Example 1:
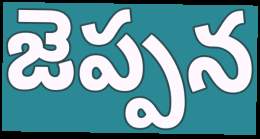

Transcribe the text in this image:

జెప్పన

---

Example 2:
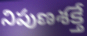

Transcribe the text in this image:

నిపుణశక్తే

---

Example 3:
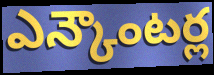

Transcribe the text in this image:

ఎన్కౌంటర్ల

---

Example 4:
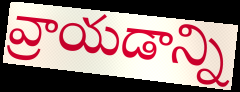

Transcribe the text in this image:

వ్రాయడాన్ని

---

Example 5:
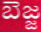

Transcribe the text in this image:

బెజ్జ